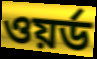
ওয়র্ড